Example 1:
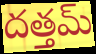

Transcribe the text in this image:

దత్తమ్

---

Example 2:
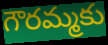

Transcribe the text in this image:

గౌరమ్మకు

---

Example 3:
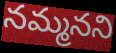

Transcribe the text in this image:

నమ్మనని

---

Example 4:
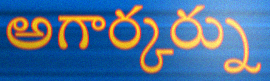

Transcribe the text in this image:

అగార్కర్ను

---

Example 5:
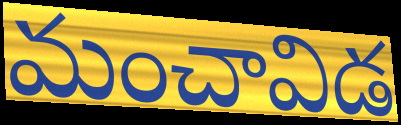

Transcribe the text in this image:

మంచావిడ